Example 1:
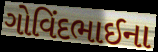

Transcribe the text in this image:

ગોવિંદભાઈના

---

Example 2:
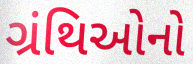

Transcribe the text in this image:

ગ્રંથિઓનો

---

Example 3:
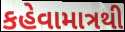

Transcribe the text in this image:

કહેવામાત્રથી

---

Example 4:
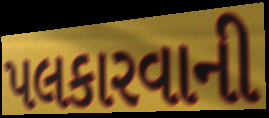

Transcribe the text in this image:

પલકારવાની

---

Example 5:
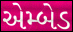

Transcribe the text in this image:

એમ્બેડ